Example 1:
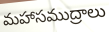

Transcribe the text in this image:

మహాసముద్రాలు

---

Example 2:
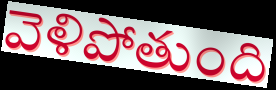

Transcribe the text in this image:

వెళిపోతుంది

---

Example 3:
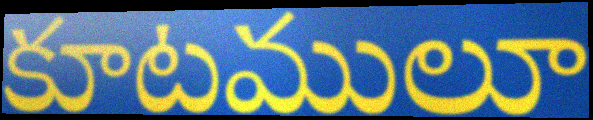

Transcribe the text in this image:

కూటములూ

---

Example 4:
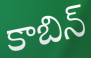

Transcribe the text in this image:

కాబిన్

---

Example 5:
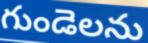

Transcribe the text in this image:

గుండెలను